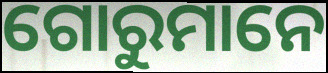
ଗୋରୁମାନେ